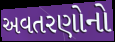
અવતરણોનો